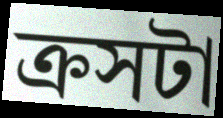
ক্রসটা